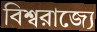
বিশ্বরাজ্যে